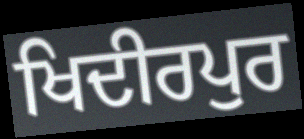
ਖਿਦੀਰਪੁਰ